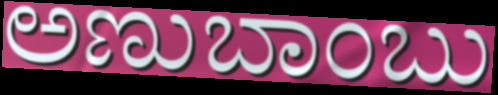
ಅಣುಬಾಂಬು